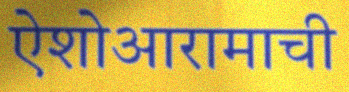
ऐशोआरामाची